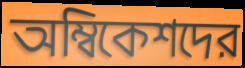
অম্বিকেশদের